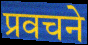
प्रवचने